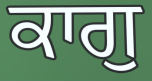
ਕਾਗੁ